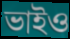
ভাইও